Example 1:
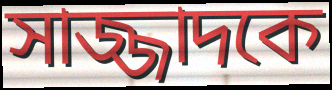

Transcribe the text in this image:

সাজ্জাদকে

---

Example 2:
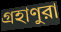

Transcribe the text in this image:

গ্রহাণুরা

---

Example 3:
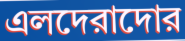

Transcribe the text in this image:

এলদেরাদোর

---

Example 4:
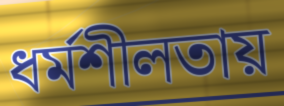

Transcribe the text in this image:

ধর্মশীলতায়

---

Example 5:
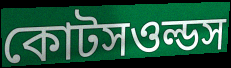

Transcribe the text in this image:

কোটসওল্ডস